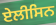
ਏਲੀਸਿਨ